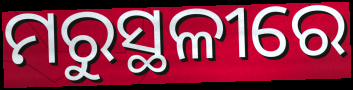
ମରୁସ୍ଥଳୀରେ